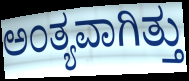
ಅಂತ್ಯವಾಗಿತ್ತು